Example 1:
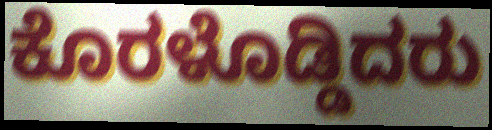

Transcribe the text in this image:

ಕೊರಳೊಡ್ಡಿದರು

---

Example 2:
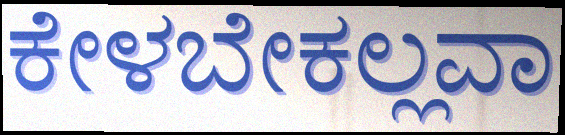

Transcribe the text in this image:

ಕೇಳಬೇಕಲ್ಲವಾ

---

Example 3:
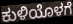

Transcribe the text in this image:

ಕುಳಿಯೊಳಗೆ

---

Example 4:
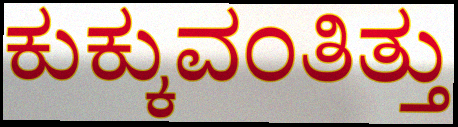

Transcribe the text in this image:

ಕುಕ್ಕುವಂತಿತ್ತು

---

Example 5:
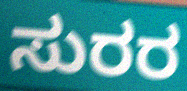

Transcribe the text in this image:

ಸುರರ